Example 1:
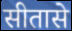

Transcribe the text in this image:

सीतासे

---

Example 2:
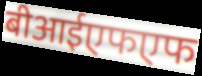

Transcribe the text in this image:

बीआईएफएफ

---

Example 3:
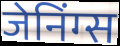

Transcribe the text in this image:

जेनिंग्स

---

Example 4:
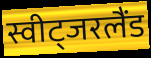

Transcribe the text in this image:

स्वीट्जरलैंड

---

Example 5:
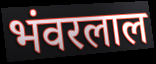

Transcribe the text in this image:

भंवरलाल